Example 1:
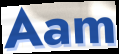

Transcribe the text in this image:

Aam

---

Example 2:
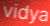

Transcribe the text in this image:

vidya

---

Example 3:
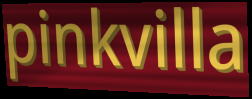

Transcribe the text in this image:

pinkvilla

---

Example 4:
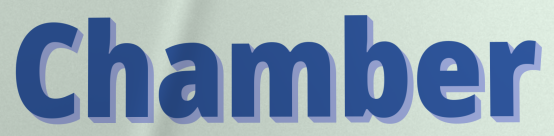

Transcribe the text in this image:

Chamber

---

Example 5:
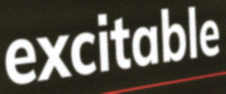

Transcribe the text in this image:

excitable